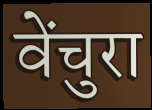
वेंचुरा